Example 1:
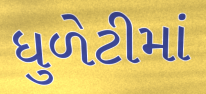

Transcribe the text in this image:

ધુળેટીમાં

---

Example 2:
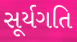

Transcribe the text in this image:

સૂર્યગતિ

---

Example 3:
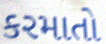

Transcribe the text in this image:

કરમાતો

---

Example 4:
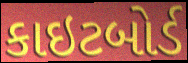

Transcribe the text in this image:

કાઇટબોર્ડ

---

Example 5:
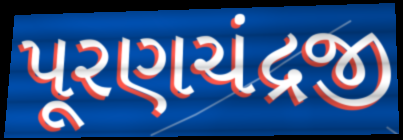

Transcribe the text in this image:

પૂરણચંદ્રજી